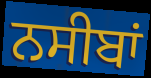
ਨਸੀਬਾਂ